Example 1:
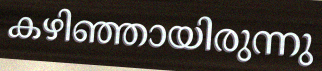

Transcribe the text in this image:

കഴിഞ്ഞായിരുന്നു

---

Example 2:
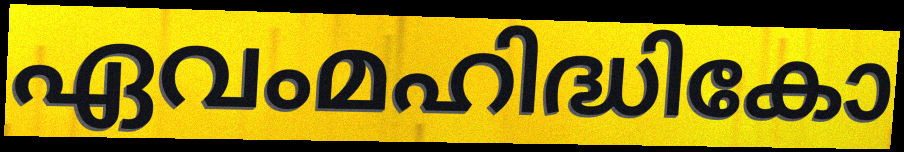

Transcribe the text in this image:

ഏവംമഹിദ്ധികോ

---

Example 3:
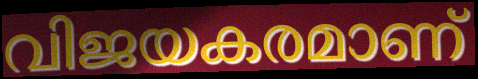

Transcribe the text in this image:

വിജയകരമാണ്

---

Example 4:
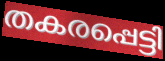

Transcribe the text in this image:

തകരപ്പെട്ടി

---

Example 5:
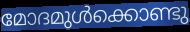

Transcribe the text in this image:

മോദമുൾക്കൊണ്ടു